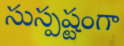
సుస్పష్టంగా